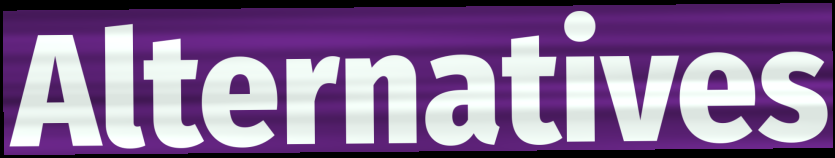
Alternatives